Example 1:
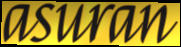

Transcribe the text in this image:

asuran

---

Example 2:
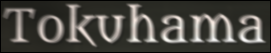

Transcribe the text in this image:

Tokuhama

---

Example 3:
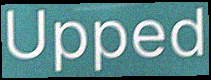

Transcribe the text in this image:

Upped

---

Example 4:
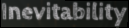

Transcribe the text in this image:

Inevitability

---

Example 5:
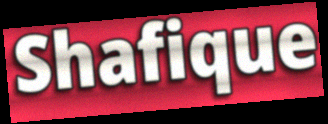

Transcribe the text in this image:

Shafique